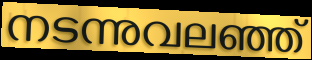
നടന്നുവലഞ്ഞ്